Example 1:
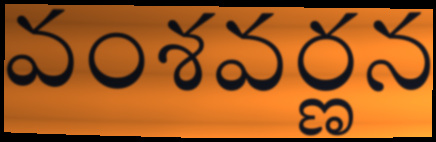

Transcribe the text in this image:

వంశవర్ణన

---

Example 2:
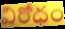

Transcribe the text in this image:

విరోధం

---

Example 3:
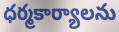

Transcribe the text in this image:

ధర్మకార్యాలను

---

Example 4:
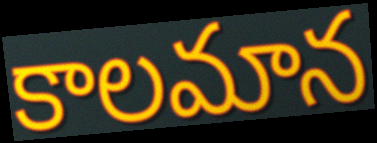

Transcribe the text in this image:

కాలమాన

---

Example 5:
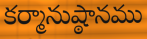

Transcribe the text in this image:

కర్మానుష్ఠానము